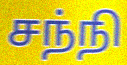
சந்நி